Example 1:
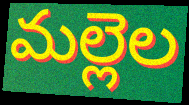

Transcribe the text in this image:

మల్లెల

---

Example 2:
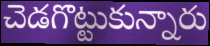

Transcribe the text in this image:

చెడగొట్టుకున్నారు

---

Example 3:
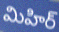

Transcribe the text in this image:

మిహిర్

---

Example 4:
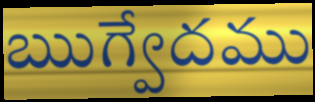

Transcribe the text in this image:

ఋగ్వేదము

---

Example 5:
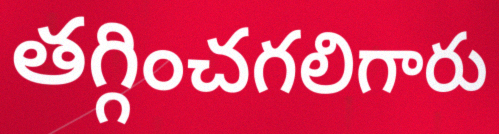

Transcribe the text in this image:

తగ్గించగలిగారు